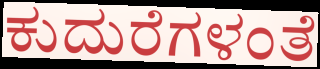
ಕುದುರೆಗಳಂತೆ